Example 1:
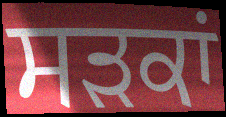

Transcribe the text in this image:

ਸੜਕਾਂ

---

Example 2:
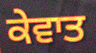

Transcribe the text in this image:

ਕੇਵਾਤ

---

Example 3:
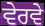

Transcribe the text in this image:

ਵੇਰਵੇ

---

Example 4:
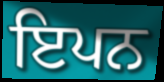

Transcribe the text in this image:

ਇਪਨ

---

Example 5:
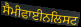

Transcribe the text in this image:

ਸੈਮੀਫਾਈਨਲਿਸਟ